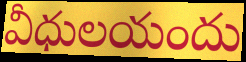
వీధులయందు